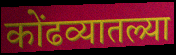
कोंढव्यातल्या